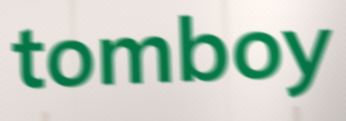
tomboy